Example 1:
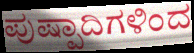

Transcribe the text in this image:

ಪುಷ್ಪಾದಿಗಳಿಂದ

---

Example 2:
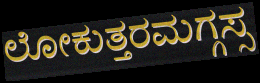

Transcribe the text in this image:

ಲೋಕುತ್ತರಮಗ್ಗಸ್ಸ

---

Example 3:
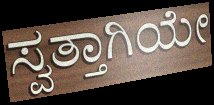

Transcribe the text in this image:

ಸ್ವತ್ತಾಗಿಯೇ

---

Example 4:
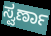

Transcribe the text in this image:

ಸ್ವರ್ಣಾ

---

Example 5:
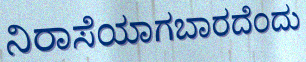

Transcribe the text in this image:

ನಿರಾಸೆಯಾಗಬಾರದೆಂದು